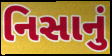
નિસાનું